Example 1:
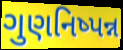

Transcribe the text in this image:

ગુણનિષ્પન્ન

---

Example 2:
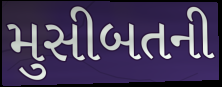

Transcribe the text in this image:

મુસીબતની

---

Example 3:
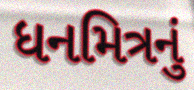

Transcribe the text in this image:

ધનમિત્રનું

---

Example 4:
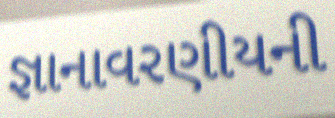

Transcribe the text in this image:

જ્ઞાનાવરણીયની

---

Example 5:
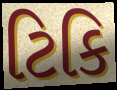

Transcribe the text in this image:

ટિકિ